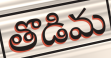
తొడిమ